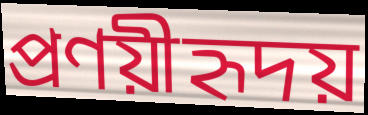
প্রণয়ীহৃদয়